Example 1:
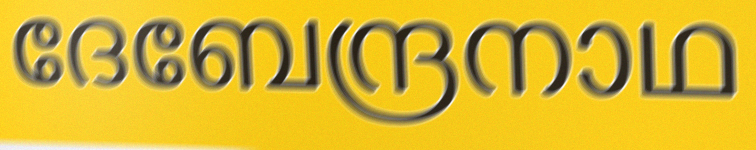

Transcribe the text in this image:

ദേബേന്ദ്രനാഥ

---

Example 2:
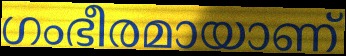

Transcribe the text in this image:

ഗംഭീരമായാണ്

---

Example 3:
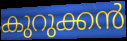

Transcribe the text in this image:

കുറുക്കൻ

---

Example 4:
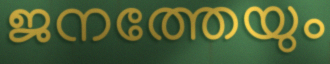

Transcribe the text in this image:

ജനത്തേയും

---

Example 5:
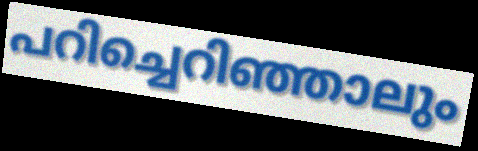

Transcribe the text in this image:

പറിച്ചെറിഞ്ഞാലും